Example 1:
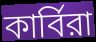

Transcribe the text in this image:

কার্বিরা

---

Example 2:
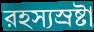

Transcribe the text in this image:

রহস্যস্রষ্টা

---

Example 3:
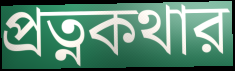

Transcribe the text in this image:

প্রত্নকথার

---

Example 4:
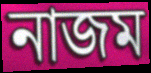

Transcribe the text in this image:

নাজম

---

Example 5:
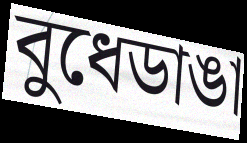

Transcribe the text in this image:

বুধেডাঙা